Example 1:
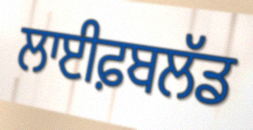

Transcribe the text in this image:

ਲਾਈਫ਼ਬਲੱਡ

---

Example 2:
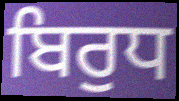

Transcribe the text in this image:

ਬਿਰੁਧ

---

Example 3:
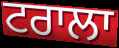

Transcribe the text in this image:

ਟਰਾਲਾ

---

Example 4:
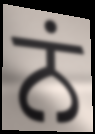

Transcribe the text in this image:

ਨਂ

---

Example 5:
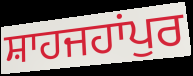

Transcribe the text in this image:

ਸ਼ਾਹਜਹਾਂਪੁਰ